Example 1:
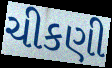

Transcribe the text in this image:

ચીકણી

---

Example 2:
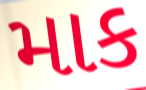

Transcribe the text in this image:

માક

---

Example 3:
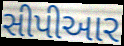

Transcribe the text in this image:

સીપીઆર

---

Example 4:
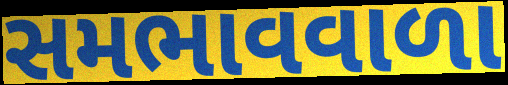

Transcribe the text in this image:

સમભાવવાળા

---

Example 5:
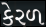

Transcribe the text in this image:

કેરળ